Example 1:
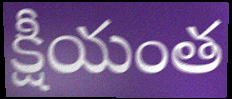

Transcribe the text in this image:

క్షీయంత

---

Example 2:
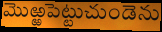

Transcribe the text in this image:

మొఱ్ఱపెట్టుచుండెను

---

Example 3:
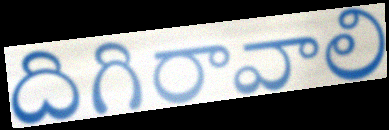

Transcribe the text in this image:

దిగిరావాలి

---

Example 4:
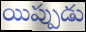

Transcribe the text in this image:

యిప్పుడు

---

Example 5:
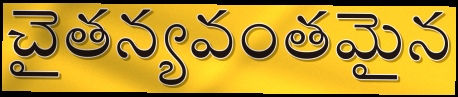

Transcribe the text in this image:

చైతన్యవంతమైన